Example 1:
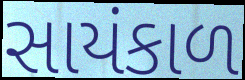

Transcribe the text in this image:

સાયંકાળ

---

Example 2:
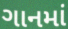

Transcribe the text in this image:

ગાનમાં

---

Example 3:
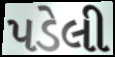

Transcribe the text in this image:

પડેલી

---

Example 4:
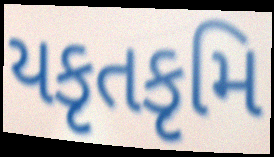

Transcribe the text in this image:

યકૃતકૃમિ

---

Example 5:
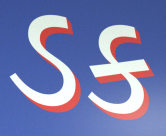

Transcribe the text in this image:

ડક